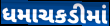
ધમાચકડીમાં